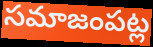
సమాజంపట్ల